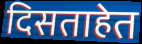
दिसताहेत